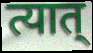
त्यात्